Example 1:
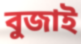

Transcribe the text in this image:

বুজাই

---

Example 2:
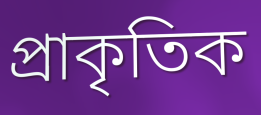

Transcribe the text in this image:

প্ৰাকৃতিক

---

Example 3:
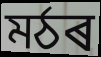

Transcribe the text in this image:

মঠৰ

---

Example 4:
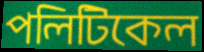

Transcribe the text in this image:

পলিটিকেল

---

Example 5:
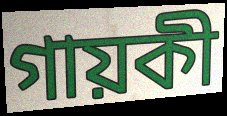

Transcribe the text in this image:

গায়কী